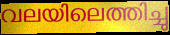
വലയിലെത്തിച്ചു